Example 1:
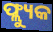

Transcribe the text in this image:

ଫ୍ଲ୍ୟୁକ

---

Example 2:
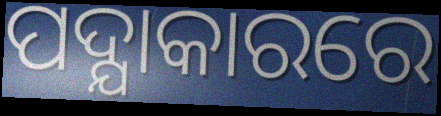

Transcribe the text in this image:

ପଦ୍ଯାକାରରେ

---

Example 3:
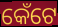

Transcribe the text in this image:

କେଁଟେ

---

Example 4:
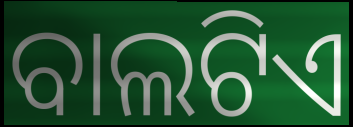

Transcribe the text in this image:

ବାଲଟିଏ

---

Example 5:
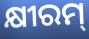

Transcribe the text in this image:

କ୍ଷୀରମ୍